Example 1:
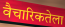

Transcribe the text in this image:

वैचारिकतेला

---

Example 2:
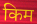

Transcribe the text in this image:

किम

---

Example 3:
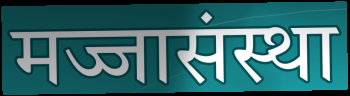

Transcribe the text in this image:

मज्जासंस्था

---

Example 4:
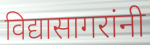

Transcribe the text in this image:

विद्यासागरांनी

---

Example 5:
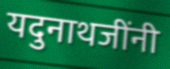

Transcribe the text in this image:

यदुनाथजींनी